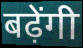
बढ़ेंगी